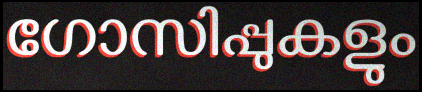
ഗോസിപ്പുകളും